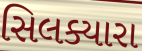
સિલક્યારા